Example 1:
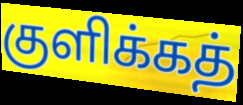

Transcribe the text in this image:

குளிக்கத்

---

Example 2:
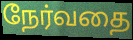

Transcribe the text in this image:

நேர்வதை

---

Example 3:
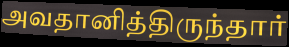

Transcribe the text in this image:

அவதானித்திருந்தார்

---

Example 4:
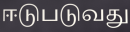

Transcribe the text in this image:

ஈடுபடுவது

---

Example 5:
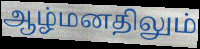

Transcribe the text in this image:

ஆழ்மனதிலும்